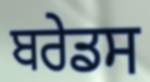
ਬਰੇਡਸ